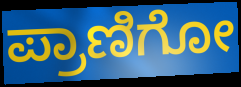
ಪ್ರಾಣಿಗೋ